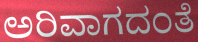
ಅರಿವಾಗದಂತೆ